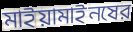
মাইয়ামাইনষের